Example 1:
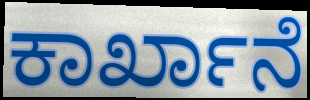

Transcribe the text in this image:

ಕಾರ್ಖಾನೆ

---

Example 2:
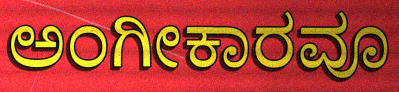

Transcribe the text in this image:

ಅಂಗೀಕಾರವೂ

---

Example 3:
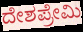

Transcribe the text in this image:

ದೇಶಪ್ರೇಮಿ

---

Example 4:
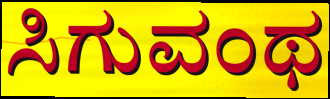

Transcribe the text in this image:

ಸಿಗುವಂಥ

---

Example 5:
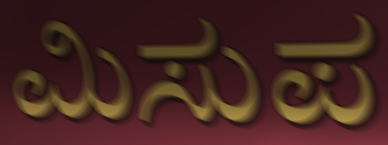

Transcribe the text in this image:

ಮಿಸುಪ